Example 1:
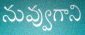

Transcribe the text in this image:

నువ్వుగాని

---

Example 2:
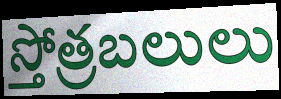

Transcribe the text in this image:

స్తోత్రబలులు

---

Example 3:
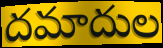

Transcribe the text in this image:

దమాదుల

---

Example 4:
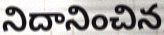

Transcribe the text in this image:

నిదానించిన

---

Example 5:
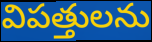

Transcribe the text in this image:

విపత్తులను